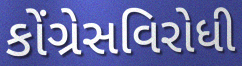
કોંગ્રેસવિરોધી